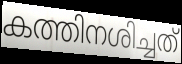
കത്തിനശിച്ചത്